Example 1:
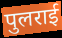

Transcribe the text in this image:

पुलराई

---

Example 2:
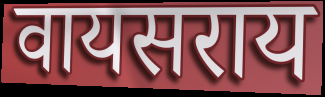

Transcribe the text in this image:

वायसराय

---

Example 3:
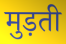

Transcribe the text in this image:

मुड़ती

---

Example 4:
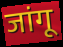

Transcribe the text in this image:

जांगू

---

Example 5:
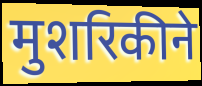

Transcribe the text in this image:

मुशरिकीने